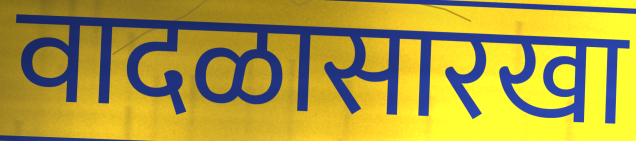
वादळासारखा